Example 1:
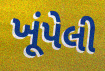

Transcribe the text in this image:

ખૂંપેલી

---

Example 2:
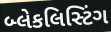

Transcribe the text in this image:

બ્લેકલિસ્ટિંગ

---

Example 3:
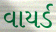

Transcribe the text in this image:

વાયર્ડ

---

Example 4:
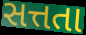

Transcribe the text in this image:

સત્તતા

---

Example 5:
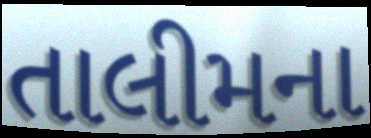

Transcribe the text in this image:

તાલીમના